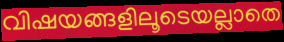
വിഷയങ്ങളിലൂടെയല്ലാതെ